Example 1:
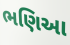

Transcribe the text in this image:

ભણિઆ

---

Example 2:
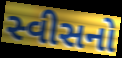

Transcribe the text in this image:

સ્વીસનો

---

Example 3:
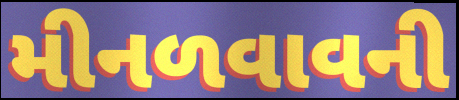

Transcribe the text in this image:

મીનળવાવની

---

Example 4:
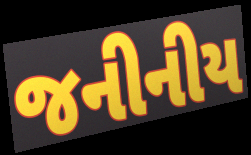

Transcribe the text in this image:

જનીનીય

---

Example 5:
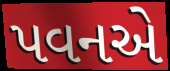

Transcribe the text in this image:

પવનએ